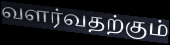
வளர்வதற்கும்